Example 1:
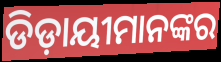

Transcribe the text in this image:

ଡିଡ଼ାୟୀମାନଙ୍କର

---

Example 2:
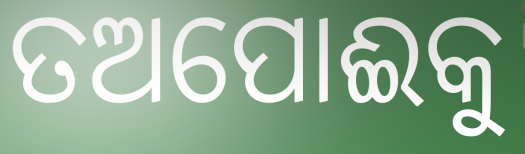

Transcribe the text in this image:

ତଅପୋଈକୁ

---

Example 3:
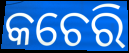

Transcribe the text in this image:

କଚେରି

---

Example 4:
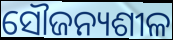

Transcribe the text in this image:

ସୌଜନ୍ୟଶୀଳ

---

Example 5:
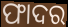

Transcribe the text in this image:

ଫାଦର